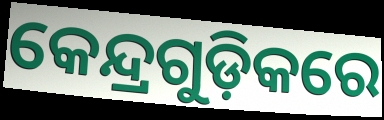
କେନ୍ଦ୍ରଗୁଡ଼ିକରେ